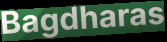
Bagdharas